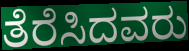
ತೆರೆಸಿದವರು